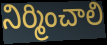
నిర్మించాలి